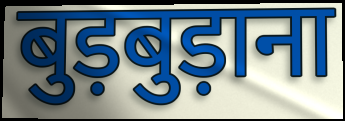
बुड़बुड़ाना